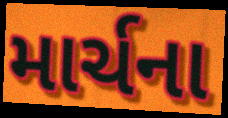
માર્ચના